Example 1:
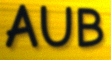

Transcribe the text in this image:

AUB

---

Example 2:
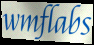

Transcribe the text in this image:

wmflabs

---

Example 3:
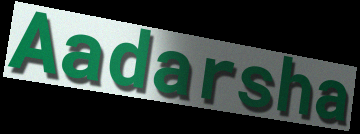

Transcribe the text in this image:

Aadarsha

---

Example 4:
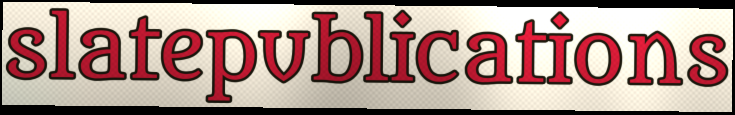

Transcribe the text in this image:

slatepublications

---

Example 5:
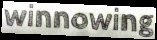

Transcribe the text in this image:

winnowing